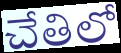
చేతిలో